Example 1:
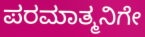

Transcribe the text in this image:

ಪರಮಾತ್ಮನಿಗೇ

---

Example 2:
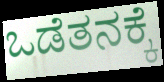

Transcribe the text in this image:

ಒಡೆತನಕ್ಕೆ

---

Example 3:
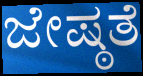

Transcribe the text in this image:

ಜೇಷ್ಠತೆ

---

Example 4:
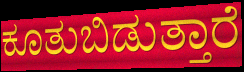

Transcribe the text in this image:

ಕೂತುಬಿಡುತ್ತಾರೆ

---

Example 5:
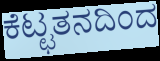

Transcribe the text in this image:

ಕೆಟ್ಟತನದಿಂದ